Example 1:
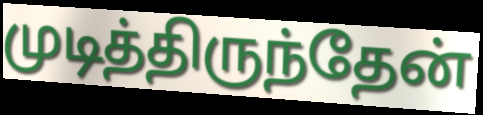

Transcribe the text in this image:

முடித்திருந்தேன்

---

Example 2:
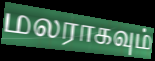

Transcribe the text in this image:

மலராகவும்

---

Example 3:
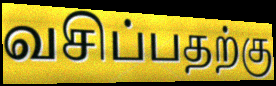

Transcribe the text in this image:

வசிப்பதற்கு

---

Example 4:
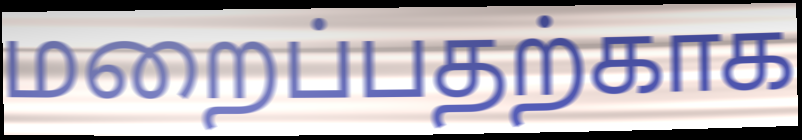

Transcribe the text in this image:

மறைப்பதற்காக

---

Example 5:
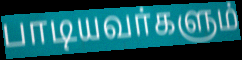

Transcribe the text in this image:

பாடியவர்களும்